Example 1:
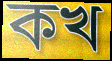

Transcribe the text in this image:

কখ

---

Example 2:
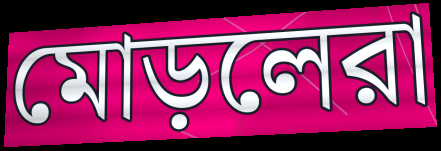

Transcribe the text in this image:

মোড়লেরা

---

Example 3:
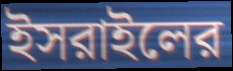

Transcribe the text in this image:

ইসরাইলের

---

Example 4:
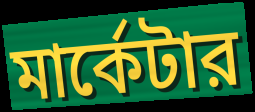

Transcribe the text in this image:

মার্কেটার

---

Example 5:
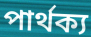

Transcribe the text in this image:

পার্থক্য